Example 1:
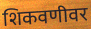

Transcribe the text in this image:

शिकवणीवर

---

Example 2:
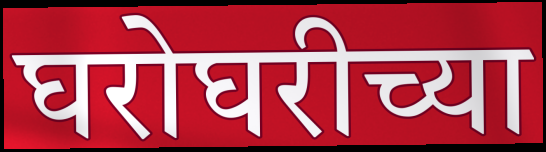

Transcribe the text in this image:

घरोघरीच्या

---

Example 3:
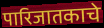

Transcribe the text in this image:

पारिजातकाचे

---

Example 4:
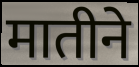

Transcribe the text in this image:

मातीने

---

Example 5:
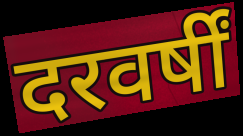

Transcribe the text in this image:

दरवर्षीं